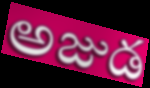
అజుడ